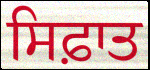
ਸਿਫ਼ਾਤ